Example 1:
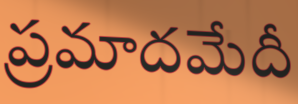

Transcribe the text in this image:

ప్రమాదమేదీ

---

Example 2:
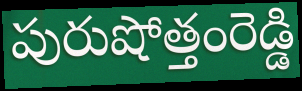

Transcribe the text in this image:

పురుషోత్తంరెడ్డి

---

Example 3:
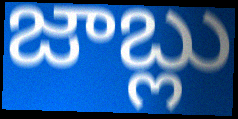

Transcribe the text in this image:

జాబ్లు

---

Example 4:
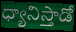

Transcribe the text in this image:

ధ్యానిస్తాడో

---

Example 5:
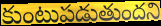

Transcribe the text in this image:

కుంటుపడుతుందని